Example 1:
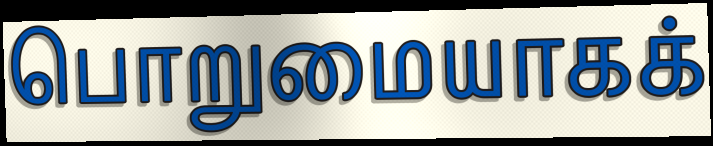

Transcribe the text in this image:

பொறுமையாகக்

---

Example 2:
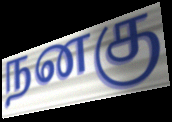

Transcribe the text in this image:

நனகு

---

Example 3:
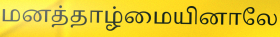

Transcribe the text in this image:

மனத்தாழ்மையினாலே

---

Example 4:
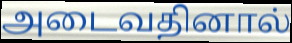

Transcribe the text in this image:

அடைவதினால்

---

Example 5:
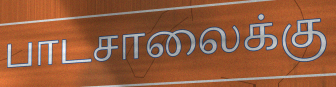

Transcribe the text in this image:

பாடசாலைக்கு